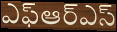
ఎఫ్ఆర్ఎస్